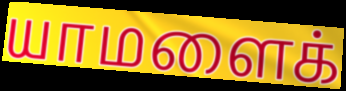
யாமளைக்